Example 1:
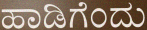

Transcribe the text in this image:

ಹಾಡಿಗೆಂದು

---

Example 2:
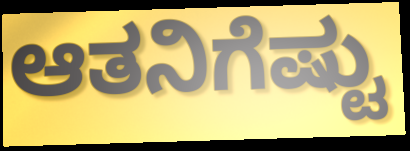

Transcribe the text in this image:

ಆತನಿಗೆಷ್ಟು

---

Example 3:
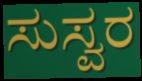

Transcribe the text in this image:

ಸುಸ್ವರ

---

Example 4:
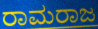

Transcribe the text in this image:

ರಾಮರಾಜ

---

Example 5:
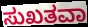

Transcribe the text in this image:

ಸುಖತವಾ